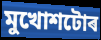
মুখোশটোৰ